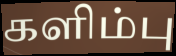
களிம்பு